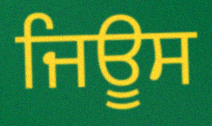
ਜਿਊਸ